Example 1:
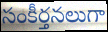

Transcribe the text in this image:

సంకీర్తనలుగా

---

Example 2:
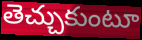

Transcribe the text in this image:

తెచ్చుకుంటూ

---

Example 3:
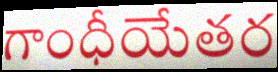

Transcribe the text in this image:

గాంధీయేతర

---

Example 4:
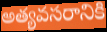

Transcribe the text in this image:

అత్యవసరానికి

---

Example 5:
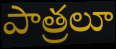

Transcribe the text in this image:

పాత్రలూ